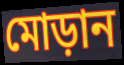
মোড়ান